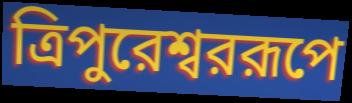
ত্রিপুরেশ্বররূপে